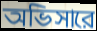
অভিসারে